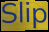
Slip